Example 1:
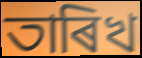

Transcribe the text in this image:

তাৰিখ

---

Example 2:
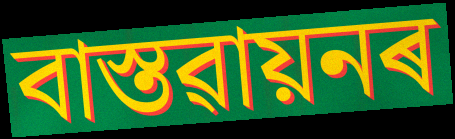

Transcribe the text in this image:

বাস্তৱায়নৰ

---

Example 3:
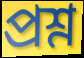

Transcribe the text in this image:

প্ৰশ্ন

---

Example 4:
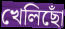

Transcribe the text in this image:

খেলিছোঁ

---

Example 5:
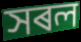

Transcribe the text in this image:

সৰল